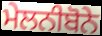
ਮੇਲਨੀਬੋਨੇ